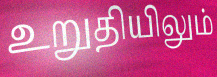
உறுதியிலும்